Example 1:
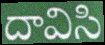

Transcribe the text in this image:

దావిసి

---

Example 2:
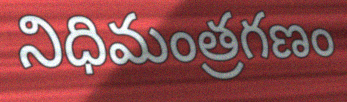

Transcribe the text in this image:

నిధిమంత్రగణం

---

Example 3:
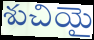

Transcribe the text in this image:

శుచియై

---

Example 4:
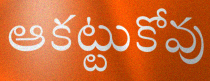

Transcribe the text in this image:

ఆకట్టుకోవు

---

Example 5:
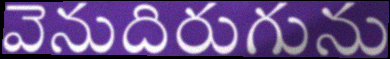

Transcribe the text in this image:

వెనుదిరుగును